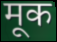
मूक